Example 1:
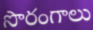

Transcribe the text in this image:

సొరంగాలు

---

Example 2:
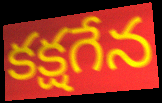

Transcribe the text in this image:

కక్షగేన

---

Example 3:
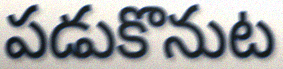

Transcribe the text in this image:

పడుకొనుట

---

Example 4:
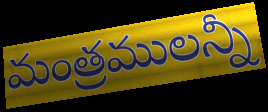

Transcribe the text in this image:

మంత్రములన్నీ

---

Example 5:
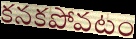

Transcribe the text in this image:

కనకపోవటం